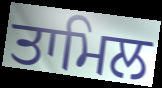
ਤਾਮਿਲ